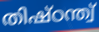
തിഷ്ഠന്ത്വ്